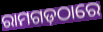
ରାମଗଡ଼ଠାରେ